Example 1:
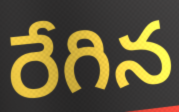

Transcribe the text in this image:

రేగిన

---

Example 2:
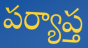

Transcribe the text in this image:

పర్యాప్త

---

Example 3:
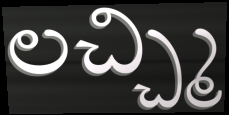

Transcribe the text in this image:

లచ్చ్మి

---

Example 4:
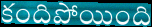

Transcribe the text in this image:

కందిపోయింది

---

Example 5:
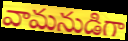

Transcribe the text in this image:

వామనుడిగా